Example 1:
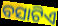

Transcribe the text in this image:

ବସାଟିଏ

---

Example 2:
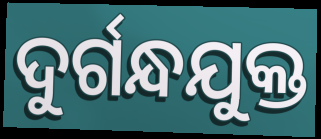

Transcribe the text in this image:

ଦୁର୍ଗନ୍ଧଯୁକ୍ତ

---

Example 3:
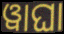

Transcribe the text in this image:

ୱାଘା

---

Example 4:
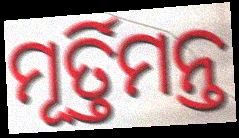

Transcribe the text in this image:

ମୂର୍ତ୍ତିମନ୍ତ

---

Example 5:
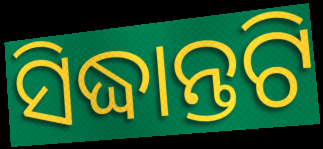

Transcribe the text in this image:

ସିଦ୍ଧାନ୍ତଟି